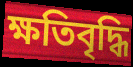
ক্ষতিবৃদ্ধি